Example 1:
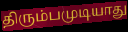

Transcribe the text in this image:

திரும்பமுடியாது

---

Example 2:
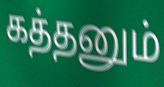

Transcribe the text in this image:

கத்தனும்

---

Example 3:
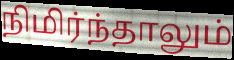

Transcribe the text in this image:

நிமிர்ந்தாலும்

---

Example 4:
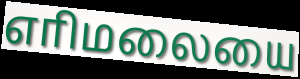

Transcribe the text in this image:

எரிமலையை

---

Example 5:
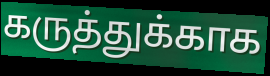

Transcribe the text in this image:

கருத்துக்காக